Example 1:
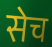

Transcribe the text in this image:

सेच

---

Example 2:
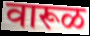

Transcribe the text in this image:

वारूळ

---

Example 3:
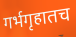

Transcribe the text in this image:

गर्भगृहातच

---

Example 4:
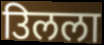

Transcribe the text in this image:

उिलला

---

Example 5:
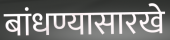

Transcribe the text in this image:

बांधण्यासारखे